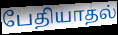
பேதியாதல்